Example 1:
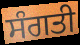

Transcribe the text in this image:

ਸੰਗਤੀ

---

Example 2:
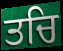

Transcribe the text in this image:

ਤਚਿ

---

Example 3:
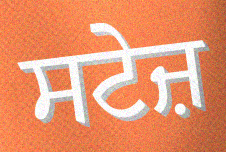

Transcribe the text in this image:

ਸਟੇਜ਼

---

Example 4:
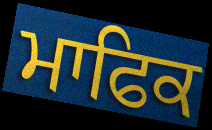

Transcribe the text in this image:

ਮਾਫਿਕ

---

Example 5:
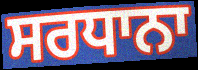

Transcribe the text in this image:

ਸਰਧਾਨਾ